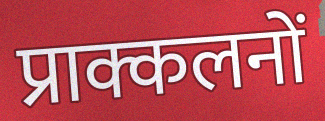
प्राक्कलनों